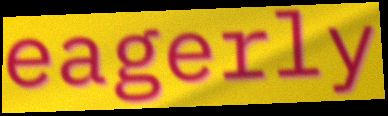
eagerly